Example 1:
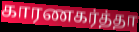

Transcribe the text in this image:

காரணகர்த்தா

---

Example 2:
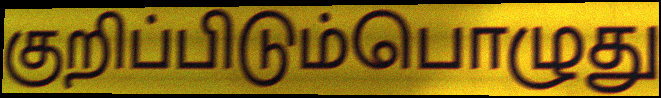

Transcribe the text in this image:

குறிப்பிடும்பொழுது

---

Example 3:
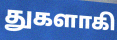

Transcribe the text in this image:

துகளாகி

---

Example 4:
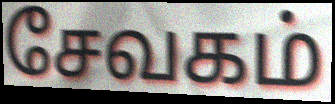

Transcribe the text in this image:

சேவகம்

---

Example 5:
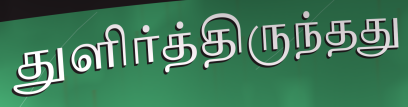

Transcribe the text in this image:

துளிர்த்திருந்தது